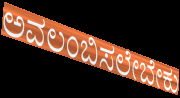
ಅವಲಂಬಿಸಲೇಬೇಕು